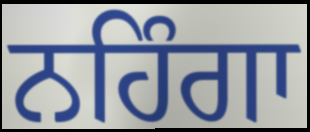
ਨਹਿੰਗਾ